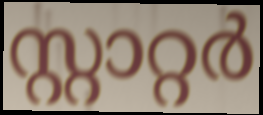
സ്റ്റാറ്റർ